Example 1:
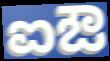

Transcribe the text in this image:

ಐಔ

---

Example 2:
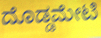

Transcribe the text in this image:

ದೊಡ್ಡಮೇಟಿ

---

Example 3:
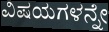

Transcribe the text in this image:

ವಿಷಯಗಳನ್ನೇ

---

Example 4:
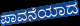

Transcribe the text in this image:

ಪಾವನೆಯಾದ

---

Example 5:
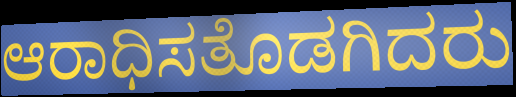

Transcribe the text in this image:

ಆರಾಧಿಸತೊಡಗಿದರು